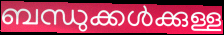
ബന്ധുക്കൾക്കുള്ള